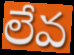
లేవ